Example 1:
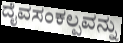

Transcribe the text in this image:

ದೈವಸಂಕಲ್ಪವನ್ನು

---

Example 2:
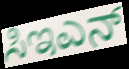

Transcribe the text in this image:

ಸಿಇಎನ್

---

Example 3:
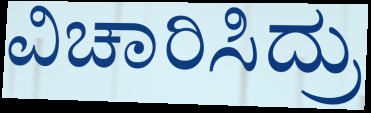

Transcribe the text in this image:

ವಿಚಾರಿಸಿದ್ರು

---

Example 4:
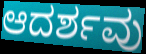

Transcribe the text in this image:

ಆದರ್ಶವು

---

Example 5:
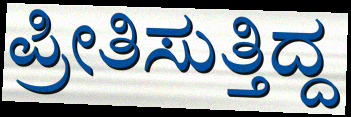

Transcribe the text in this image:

ಪ್ರೀತಿಸುತ್ತಿದ್ದ